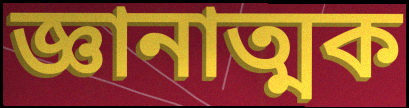
জ্ঞানাত্মক